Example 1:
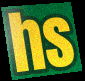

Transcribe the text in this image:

hs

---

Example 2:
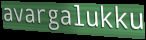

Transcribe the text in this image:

avargalukku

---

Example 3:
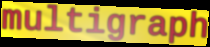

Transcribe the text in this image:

multigraph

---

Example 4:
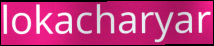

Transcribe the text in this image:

lokacharyar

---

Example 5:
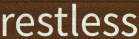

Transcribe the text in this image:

restless